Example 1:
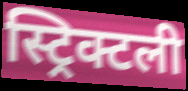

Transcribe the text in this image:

स्ट्रिक्टली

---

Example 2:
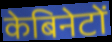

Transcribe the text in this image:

केबिनेटों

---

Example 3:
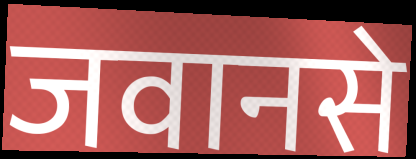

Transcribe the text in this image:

जवानसे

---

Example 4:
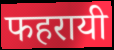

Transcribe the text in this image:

फहरायी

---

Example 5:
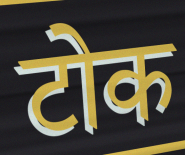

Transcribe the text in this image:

टोक